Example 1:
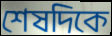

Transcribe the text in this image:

শেষদিকে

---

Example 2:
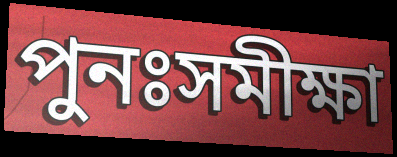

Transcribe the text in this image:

পুনঃসমীক্ষা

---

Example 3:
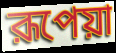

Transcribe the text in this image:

রূপেয়া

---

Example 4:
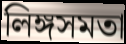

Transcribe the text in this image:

লিঙ্গসমতা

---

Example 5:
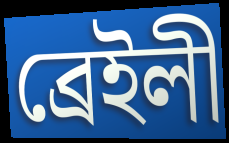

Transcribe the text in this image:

ব্রেইলী